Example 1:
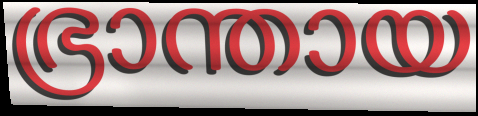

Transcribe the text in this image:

ഭ്രാന്തായ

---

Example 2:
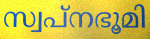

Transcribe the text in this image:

സ്വപ്നഭൂമി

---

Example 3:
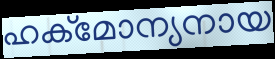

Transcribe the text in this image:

ഹക്മോന്യനായ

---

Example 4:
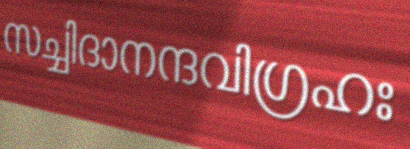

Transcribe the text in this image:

സച്ചിദാനന്ദവിഗ്രഹഃ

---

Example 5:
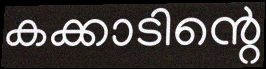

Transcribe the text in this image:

കക്കാടിന്റെ